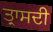
ਤ੍ਰਾਸਦੀ